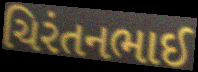
ચિરંતનભાઈ